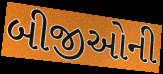
બીજીઓની